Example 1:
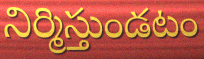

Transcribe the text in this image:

నిర్మిస్తుండటం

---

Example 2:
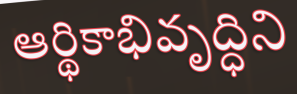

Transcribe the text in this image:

ఆర్థికాభివృద్ధిని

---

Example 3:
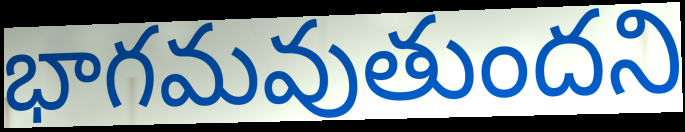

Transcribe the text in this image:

భాగమవుతుందని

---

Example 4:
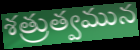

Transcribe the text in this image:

శత్రుత్వమున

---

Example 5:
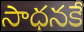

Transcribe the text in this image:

సాధనకే